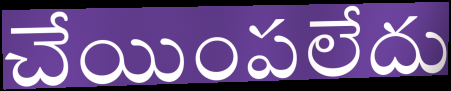
చేయింపలేదు